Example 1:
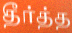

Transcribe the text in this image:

தீர்த்த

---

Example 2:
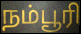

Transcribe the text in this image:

நம்பூரி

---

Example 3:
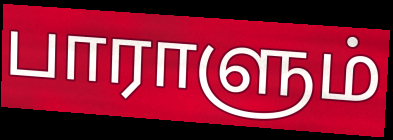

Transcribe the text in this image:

பாராளும்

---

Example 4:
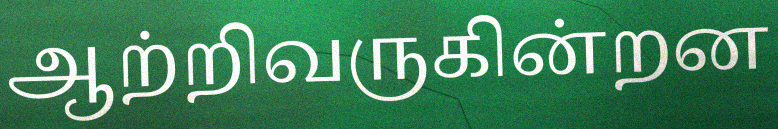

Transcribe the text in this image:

ஆற்றிவருகின்றன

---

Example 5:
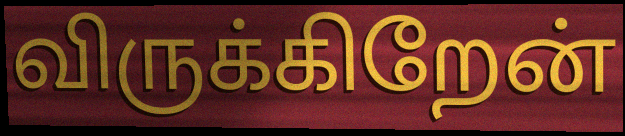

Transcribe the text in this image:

விருக்கிறேன்